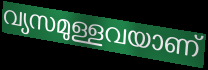
വ്യസമുള്ളവയാണ്